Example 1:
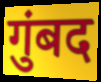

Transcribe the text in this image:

गुंबद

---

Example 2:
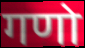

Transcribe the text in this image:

गणो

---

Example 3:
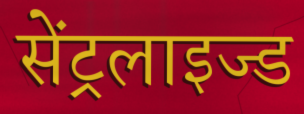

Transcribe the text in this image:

सेंट्रलाइज्ड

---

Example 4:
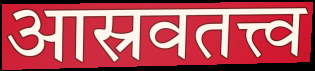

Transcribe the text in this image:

आस्रवतत्त्व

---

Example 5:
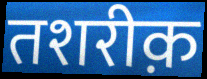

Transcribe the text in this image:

तशरीक़